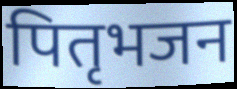
पितृभजन